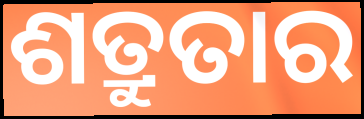
ଶତ୍ରୁତାର